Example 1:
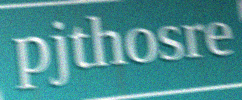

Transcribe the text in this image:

pjthosre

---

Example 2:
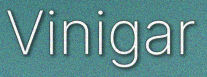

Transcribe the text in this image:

Vinigar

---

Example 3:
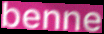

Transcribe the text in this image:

benne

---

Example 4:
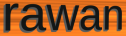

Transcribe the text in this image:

rawan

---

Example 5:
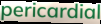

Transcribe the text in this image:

pericardial